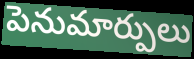
పెనుమార్పులు